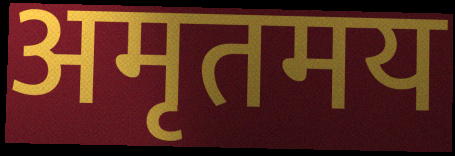
अमृतमय